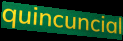
quincuncial